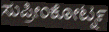
ಸುಪ್ರೀಂಕೋರ್ಟ್ನ